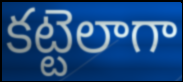
కట్టెలాగా